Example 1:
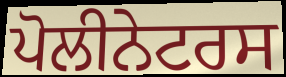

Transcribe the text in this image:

ਪੋਲੀਨੇਟਰਸ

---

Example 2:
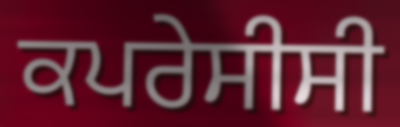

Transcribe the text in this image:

ਕਪਰੇਸੀਸੀ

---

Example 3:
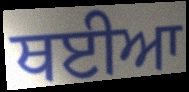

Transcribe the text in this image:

ਥਈਆ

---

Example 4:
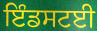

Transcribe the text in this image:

ਇੰਡਸਟਈ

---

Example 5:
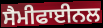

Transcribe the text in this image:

ਸੈਮੀਫਾਈਨਲ